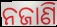
ନଜାଣି